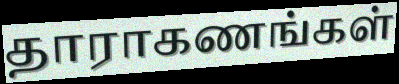
தாராகணங்கள்